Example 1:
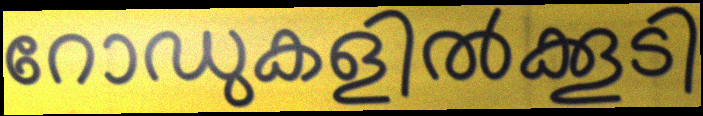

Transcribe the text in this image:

റോഡുകളിൽക്കൂടി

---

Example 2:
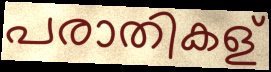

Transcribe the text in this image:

പരാതികള്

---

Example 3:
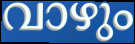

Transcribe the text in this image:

വാഴും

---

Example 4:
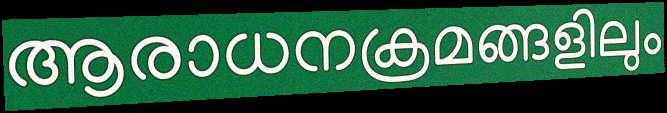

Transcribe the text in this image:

ആരാധനക്രമങ്ങളിലും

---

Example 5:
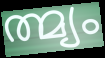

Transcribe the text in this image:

ത്മ്യം